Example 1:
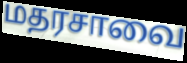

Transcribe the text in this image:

மதரசாவை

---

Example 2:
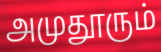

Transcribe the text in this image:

அமுதூரும்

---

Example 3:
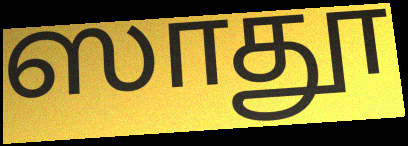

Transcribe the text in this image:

ஸாதூ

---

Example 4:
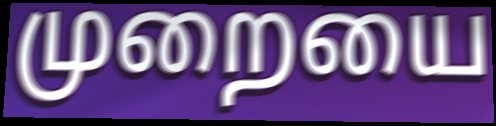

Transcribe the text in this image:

முறையை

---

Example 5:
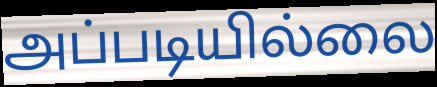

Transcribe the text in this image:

அப்படியில்லை